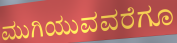
ಮುಗಿಯುವವರೆಗೂ